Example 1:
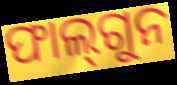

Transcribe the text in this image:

ଫାଲ୍‍ଗୁନ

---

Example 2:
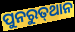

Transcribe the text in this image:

ପୁନରୁତ୍‌ଥାନ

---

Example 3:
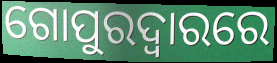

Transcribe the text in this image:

ଗୋପୁରଦ୍ବାରରେ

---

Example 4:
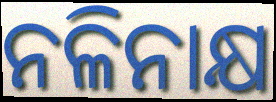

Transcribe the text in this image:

ନଳିନାକ୍ଷ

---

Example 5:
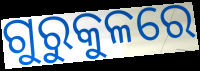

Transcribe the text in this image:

ଗୁରୁକୁଳରେ